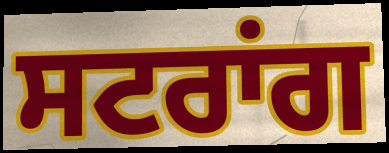
ਸਟਰਾਂਗ